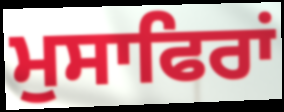
ਮੁਸਾਫਿਰਾਂ